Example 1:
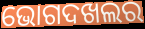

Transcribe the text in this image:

ଭୋଗଦଖଲର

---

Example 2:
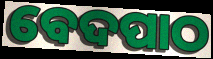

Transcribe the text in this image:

ବେଦପାଠ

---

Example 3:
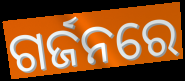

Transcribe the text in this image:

ଗର୍ଜନରେ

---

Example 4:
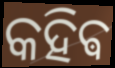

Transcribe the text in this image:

କହିଵ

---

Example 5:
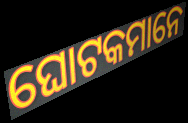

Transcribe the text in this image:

ଘୋଟକମାନେ